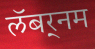
लॅबर्नम